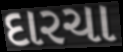
દારચા